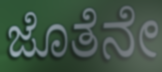
ಜೊತೆನೇ